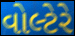
વોલ્ટેરે